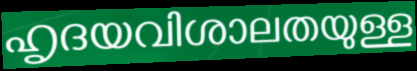
ഹൃദയവിശാലതയുള്ള